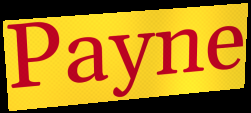
Payne